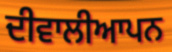
ਦੀਵਾਲੀਆਪਨ